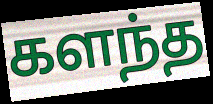
களந்த